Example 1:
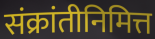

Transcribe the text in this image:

संक्रांतीनिमित्त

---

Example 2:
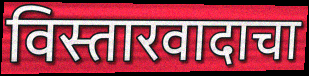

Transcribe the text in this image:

विस्तारवादाचा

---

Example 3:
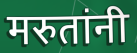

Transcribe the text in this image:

मरुतांनी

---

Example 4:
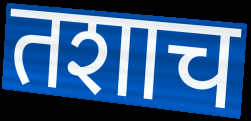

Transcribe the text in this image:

तशाच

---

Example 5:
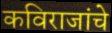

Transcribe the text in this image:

कविराजांचे